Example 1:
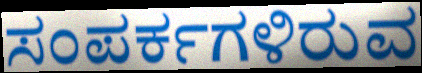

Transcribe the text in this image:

ಸಂಪರ್ಕಗಳಿರುವ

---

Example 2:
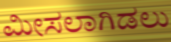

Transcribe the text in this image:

ಮೀಸಲಾಗಿಡಲು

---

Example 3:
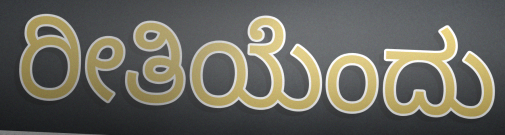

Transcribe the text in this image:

ರೀತಿಯೆಂದು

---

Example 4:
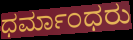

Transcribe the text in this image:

ಧರ್ಮಾಂಧರು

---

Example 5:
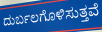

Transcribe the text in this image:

ದುರ್ಬಲಗೊಳಿಸುತ್ತವೆ